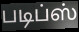
படிப்ஸ்